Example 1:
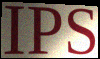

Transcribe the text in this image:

IPS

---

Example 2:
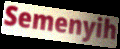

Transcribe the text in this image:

Semenyih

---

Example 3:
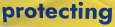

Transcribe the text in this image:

protecting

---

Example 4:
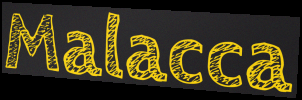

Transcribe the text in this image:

Malacca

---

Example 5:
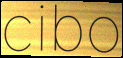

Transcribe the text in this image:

cibo